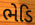
ભેડિ